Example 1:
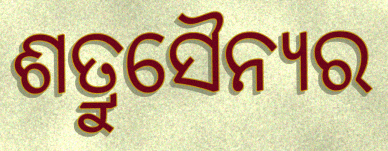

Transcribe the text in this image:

ଶତ୍ରୁସୈନ୍ୟର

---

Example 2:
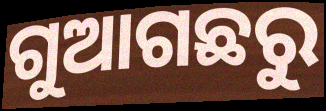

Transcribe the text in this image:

ଗୁଆଗଛରୁ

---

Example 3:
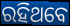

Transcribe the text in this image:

ରହିଥବେ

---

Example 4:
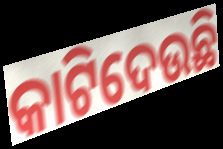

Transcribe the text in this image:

କାଟିଦେଉଛି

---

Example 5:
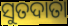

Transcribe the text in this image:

ସୁତଦାତା